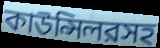
কাউন্সিলরসহ